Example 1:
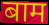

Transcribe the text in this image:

बाम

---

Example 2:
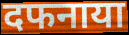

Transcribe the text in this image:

दफनाया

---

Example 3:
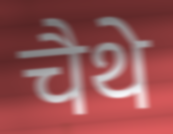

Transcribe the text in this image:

चैथे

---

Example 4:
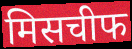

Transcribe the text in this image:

मिसचीफ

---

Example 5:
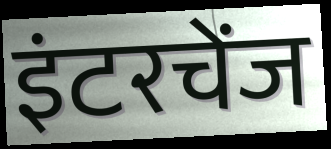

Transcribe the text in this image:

इंटरचेंज